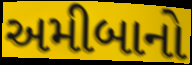
અમીબાનો